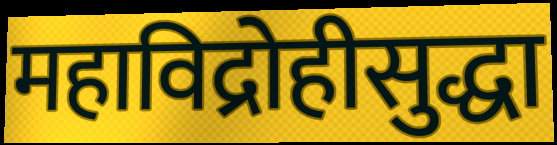
महाविद्रोहीसुद्धा